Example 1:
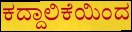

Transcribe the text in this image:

ಕದ್ದಾಲಿಕೆಯಿಂದ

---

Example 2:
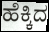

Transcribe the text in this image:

ಹೆಕ್ಕಿದ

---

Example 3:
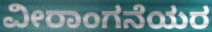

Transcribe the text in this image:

ವೀರಾಂಗನೆಯರ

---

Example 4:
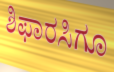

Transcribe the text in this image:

ಶಿಫಾರಸಿಗೂ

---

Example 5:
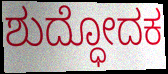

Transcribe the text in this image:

ಶುದ್ಧೋದಕ